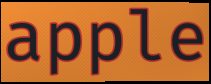
apple